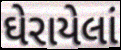
ઘેરાયેલાં